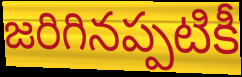
జరిగినప్పటికీ